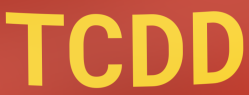
TCDD